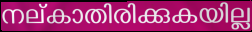
നല്‌കാതിരിക്കുകയില്ല